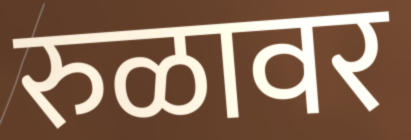
रुळावर